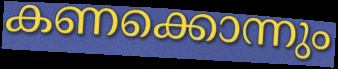
കണക്കൊന്നും